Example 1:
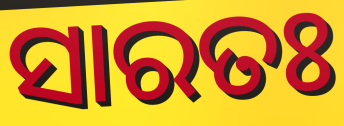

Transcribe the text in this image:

ସାରତଃ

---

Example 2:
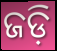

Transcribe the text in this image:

ଜଡ଼ି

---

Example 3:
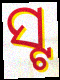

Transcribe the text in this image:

ସ୍ଟ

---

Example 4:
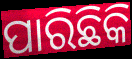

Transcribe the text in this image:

ପାରିଛିକି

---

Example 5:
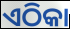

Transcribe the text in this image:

ଏଠିକା